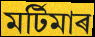
মৰ্টিমাৰ